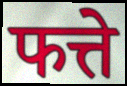
फत्ते